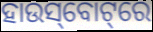
ହାଉସ୍‌ବୋଟ୍‌ରେ